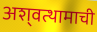
अश्वत्थामाची